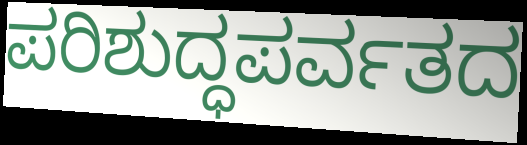
ಪರಿಶುದ್ಧಪರ್ವತದ